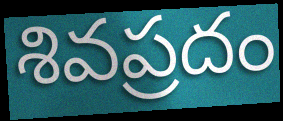
శివప్రదం